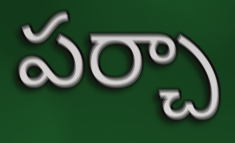
పర్చా